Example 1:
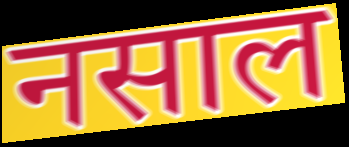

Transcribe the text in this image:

नसाल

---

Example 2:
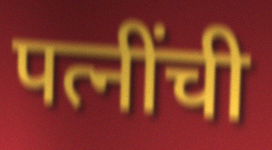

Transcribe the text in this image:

पत्नींची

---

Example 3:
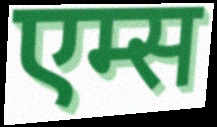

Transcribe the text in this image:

एम्स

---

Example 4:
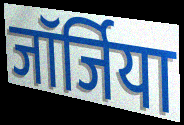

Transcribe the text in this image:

जॉर्जिया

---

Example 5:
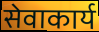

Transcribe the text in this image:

सेवाकार्य